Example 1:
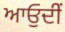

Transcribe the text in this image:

ਆਓੁਦੀਂ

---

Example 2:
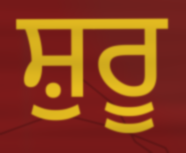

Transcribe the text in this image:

ਸ਼ੁਰੂ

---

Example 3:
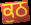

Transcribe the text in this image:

ਕੁਠ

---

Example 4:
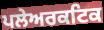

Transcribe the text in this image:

ਪਲੇਅਰਕਟਿਕ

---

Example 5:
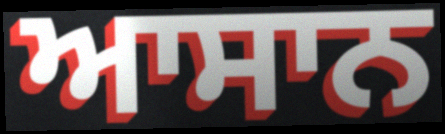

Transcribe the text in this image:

ਆਸਾਨ